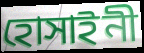
হোসাইনী